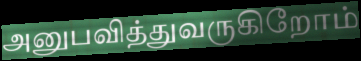
அனுபவித்துவருகிறோம்